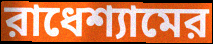
রাধেশ্যামের